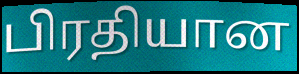
பிரதியான